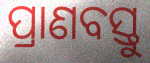
ପ୍ରାଣବସ୍ତୁ